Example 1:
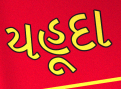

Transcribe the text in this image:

યહૂદા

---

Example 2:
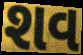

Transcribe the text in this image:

શવ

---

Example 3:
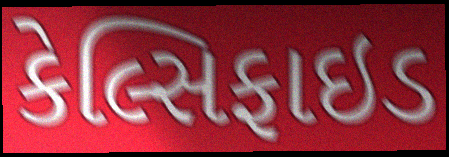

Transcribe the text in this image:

કેલ્સિફાઇડ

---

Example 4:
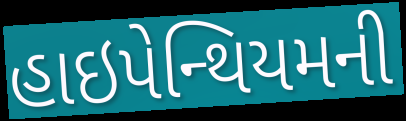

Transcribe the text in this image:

હાઇપેન્થિયમની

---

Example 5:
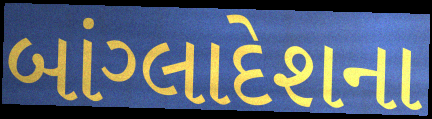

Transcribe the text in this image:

બાંગ્લાદેશના